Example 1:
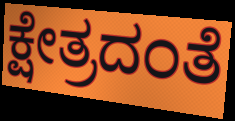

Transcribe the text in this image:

ಕ್ಷೇತ್ರದಂತೆ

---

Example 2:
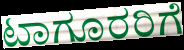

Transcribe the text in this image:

ಟಾಗೂರರಿಗೆ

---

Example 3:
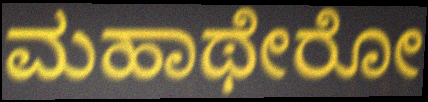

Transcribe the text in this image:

ಮಹಾಥೇರೋ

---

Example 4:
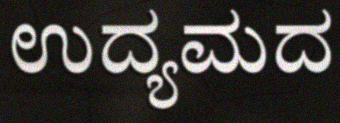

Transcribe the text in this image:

ಉದ್ಯಮದ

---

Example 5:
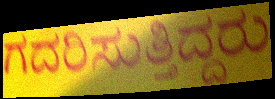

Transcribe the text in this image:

ಗದರಿಸುತ್ತಿದ್ದರು